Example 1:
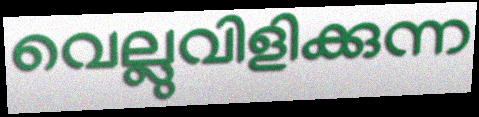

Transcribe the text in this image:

വെല്ലുവിളിക്കുന്ന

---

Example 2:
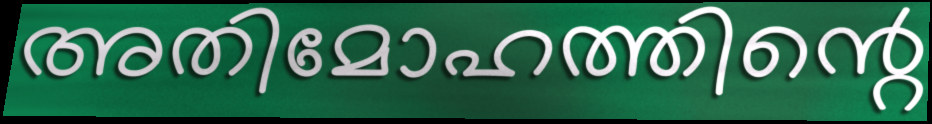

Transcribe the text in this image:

അതിമോഹത്തിന്റെ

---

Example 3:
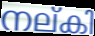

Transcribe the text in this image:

നല്‌കി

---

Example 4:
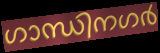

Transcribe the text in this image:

ഗാന്ധിനഗർ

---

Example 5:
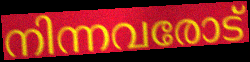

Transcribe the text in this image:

നിന്നവരോട്